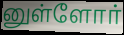
னுள்ளோர்